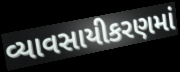
વ્યાવસાયીકરણમાં